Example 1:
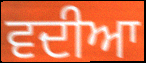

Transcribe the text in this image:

ਵਦੀਆ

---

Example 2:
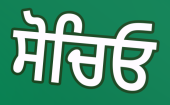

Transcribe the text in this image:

ਸੋਚਿਓ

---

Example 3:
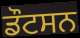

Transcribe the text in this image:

ਡੌਟਸਨ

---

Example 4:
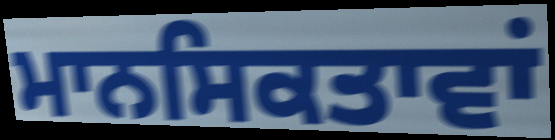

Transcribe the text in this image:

ਮਾਨਸਿਕਤਾਵਾਂ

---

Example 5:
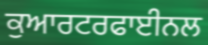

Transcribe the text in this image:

ਕੁਆਰਟਰਫਾਈਨਲ